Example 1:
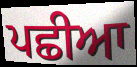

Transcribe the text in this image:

ਪਛੀਆ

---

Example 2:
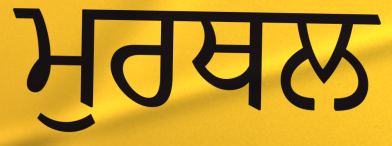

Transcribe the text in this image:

ਮੁਰਥਲ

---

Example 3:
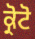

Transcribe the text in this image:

ਕ੍ਰੋਟੋ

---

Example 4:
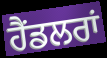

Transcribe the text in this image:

ਹੈਂਡਲਰਾਂ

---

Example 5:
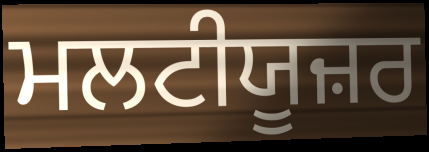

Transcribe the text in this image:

ਮਲਟੀਯੂਜ਼ਰ